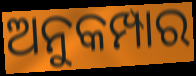
ଅନୁକମ୍ପାର